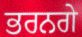
ਭਰਨਗੇ